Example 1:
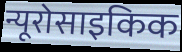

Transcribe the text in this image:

न्यूरोसाइकिक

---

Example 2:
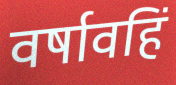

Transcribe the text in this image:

वर्षावहिं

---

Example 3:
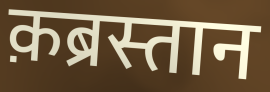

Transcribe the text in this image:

क़ब्रस्तान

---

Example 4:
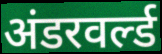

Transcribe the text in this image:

अंडरवर्ल्ड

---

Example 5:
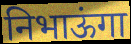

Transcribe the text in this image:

निभाऊंगा